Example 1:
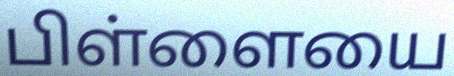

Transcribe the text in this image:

பிள்ளையை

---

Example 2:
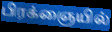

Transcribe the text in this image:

பிரக்ஞையில்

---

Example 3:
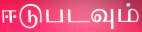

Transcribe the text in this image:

ஈடுபடவும்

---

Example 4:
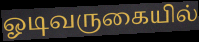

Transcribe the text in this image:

ஓடிவருகையில்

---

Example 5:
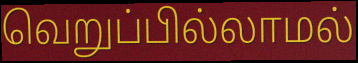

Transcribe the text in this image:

வெறுப்பில்லாமல்